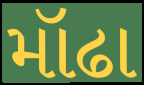
મૉઢા